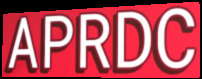
APRDC